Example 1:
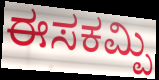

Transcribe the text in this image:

ಈಸಕಮ್ಪಿ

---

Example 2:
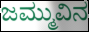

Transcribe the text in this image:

ಜಮ್ಮುವಿನ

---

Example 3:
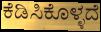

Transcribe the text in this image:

ಕೆಡಿಸಿಕೊಳ್ಳದೆ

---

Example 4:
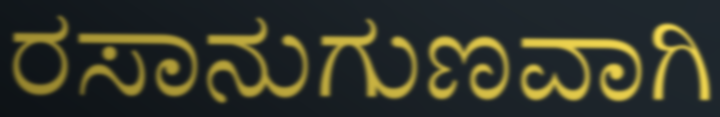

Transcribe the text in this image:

ರಸಾನುಗುಣವಾಗಿ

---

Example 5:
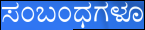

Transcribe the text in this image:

ಸಂಬಂಧಗಳೂ